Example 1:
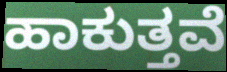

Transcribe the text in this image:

ಹಾಕುತ್ತವೆ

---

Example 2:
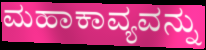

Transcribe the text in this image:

ಮಹಾಕಾವ್ಯವನ್ನು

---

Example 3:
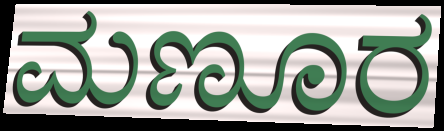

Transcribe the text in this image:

ಮಣೂರ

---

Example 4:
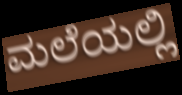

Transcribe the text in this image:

ಮಲೆಯಲ್ಲಿ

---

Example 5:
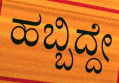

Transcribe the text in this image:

ಹಬ್ಬಿದ್ದೇ